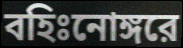
বহিঃনোঙ্গরে